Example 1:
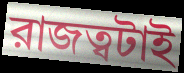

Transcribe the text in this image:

রাজত্বটাই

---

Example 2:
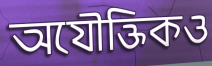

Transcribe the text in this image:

অযৌক্তিকও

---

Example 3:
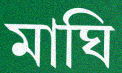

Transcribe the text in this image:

মাঘি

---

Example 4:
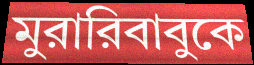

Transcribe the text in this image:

মুরারিবাবুকে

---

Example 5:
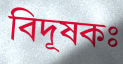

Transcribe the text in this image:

বিদূষকঃ